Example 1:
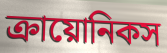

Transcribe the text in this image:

ক্রায়োনিকস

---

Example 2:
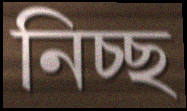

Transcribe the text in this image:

নিচ্ছ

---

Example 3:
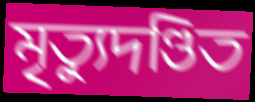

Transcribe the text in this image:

মৃত্যুদণ্ডিত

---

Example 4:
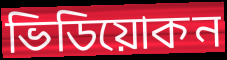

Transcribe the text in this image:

ভিডিয়োকন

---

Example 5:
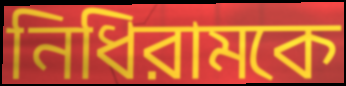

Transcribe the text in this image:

নিধিরামকে